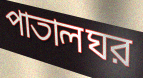
পাতালঘর